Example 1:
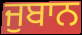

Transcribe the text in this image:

ਜੁਬਾਨ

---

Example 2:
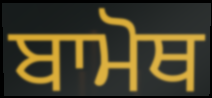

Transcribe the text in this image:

ਬਾਮੋਥ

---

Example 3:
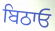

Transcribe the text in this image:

ਬਿਠਾਓ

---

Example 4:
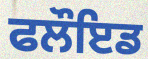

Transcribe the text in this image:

ਫਲੌਇਡ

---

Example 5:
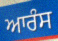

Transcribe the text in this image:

ਆਰੰਸ